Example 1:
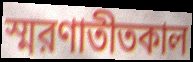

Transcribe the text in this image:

স্মরণাতীতকাল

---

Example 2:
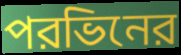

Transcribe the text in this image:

পরভিনের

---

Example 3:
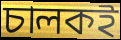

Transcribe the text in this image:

চালকই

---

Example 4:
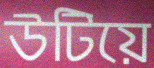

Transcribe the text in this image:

উটিয়ে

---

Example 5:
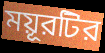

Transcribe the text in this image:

ময়ূরটির